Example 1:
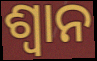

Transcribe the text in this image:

ଶ୍ୱାନ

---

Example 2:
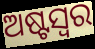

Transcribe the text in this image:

ଅଷ୍ଟସ୍ୱର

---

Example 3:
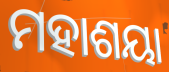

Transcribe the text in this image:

ମହାଶୟା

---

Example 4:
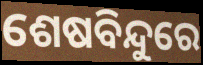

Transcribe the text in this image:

ଶେଷବିନ୍ଦୁରେ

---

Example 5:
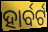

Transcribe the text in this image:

ହାର୍ବର୍ଟ